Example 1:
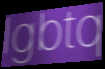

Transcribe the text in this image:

lgbtq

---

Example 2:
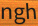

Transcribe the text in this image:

ngh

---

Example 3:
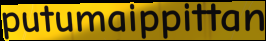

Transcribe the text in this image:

putumaippittan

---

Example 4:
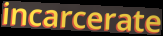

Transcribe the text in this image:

incarcerate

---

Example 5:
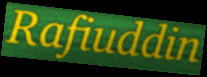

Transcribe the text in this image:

Rafiuddin